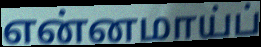
என்னமாய்ப்